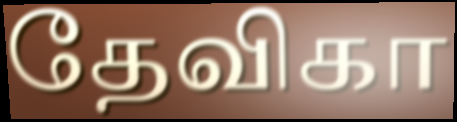
தேவிகா